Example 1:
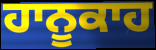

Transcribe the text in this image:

ਹਾਨੂਕਾਹ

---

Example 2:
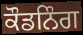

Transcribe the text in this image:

ਕੌਡਨਿੰਗ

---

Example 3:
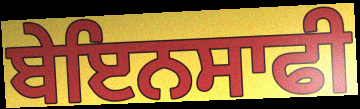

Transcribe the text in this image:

ਬੇਇਨਸਾਫੀ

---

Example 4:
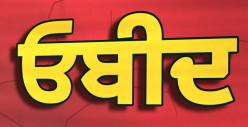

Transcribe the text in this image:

ਓਬੀਦ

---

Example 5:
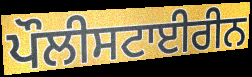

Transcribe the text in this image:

ਪੌਲੀਸਟਾਈਰੀਨ